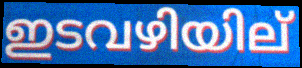
ഇടവഴിയില്